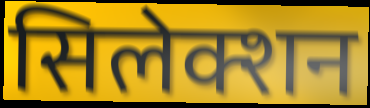
सिलेक्शन